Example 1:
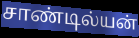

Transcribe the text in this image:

சாண்டில்யன்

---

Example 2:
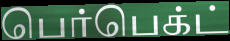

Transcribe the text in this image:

பெர்பெக்ட்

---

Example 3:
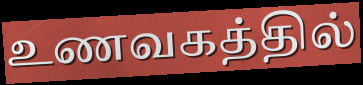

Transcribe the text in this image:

உணவகத்தில்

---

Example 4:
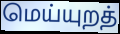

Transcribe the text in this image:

மெய்யுறத்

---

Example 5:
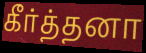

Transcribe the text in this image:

கீர்த்தனா